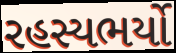
રહસ્યભર્યો